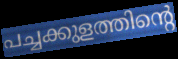
പച്ചക്കുളത്തിന്റെ